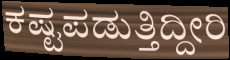
ಕಷ್ಟಪಡುತ್ತಿದ್ದೀರಿ